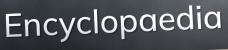
Encyclopaedia